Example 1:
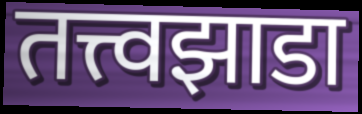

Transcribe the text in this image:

तत्त्वझाडा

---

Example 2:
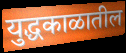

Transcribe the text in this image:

युद्धकाळातील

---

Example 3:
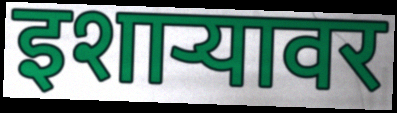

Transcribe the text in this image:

इशार्‍यावर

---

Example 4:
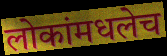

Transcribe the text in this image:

लोकांमधलेच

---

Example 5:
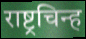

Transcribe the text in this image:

राष्ट्रचिन्ह